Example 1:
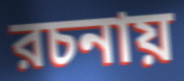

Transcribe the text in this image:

রচনায়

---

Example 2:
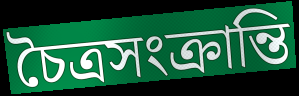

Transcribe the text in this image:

চৈত্রসংক্রান্তি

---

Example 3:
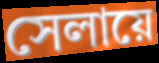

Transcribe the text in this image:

সেলায়ে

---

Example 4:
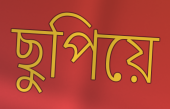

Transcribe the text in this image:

ছুপিয়ে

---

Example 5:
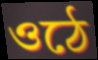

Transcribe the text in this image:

ওঠে